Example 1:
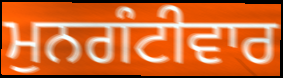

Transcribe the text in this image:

ਮੁਨਗੰਟੀਵਾਰ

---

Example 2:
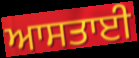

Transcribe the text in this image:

ਆਸਤਾਈ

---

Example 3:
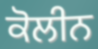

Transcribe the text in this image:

ਕੋਲੀਨ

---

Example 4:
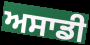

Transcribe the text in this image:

ਅਸਾਡੀ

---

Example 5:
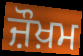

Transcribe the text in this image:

ਜ਼ੌਖ਼ਮ